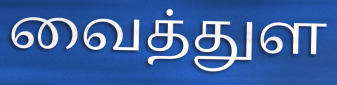
வைத்துள